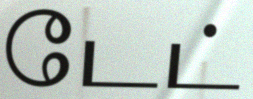
டேட்